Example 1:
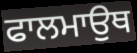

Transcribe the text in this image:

ਫਾਲਮਾਉਥ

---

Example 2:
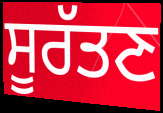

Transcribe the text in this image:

ਸੂਰੱਤਣ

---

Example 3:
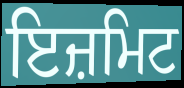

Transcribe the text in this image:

ਇਜ਼ਮਿਟ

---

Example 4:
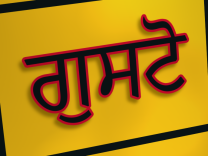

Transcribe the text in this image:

ਗੁਸਟੋ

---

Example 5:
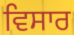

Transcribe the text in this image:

ਵਿਸਾਰ